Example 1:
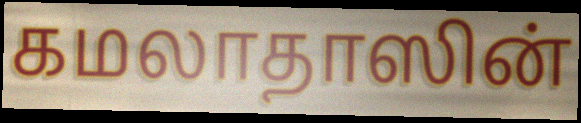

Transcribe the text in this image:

கமலாதாஸின்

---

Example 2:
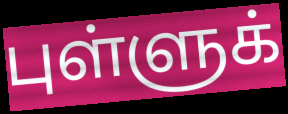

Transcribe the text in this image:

புள்ளுக்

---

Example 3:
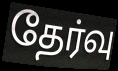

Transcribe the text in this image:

தேர்வு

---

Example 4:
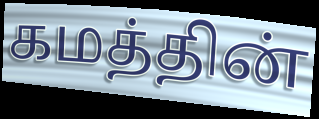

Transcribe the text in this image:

கமத்தின்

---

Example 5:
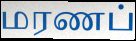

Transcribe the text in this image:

மரணப்